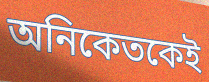
অনিকেতকেই